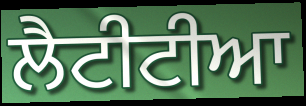
ਲੈਟੀਟੀਆ